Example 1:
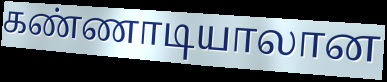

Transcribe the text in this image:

கண்ணாடியாலான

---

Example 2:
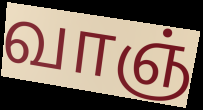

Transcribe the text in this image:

வாஞ்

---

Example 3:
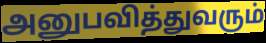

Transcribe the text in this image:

அனுபவித்துவரும்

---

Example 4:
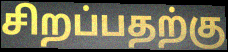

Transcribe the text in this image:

சிறப்பதற்கு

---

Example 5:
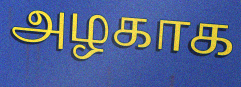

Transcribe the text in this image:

அழகாக